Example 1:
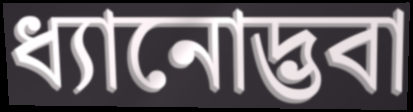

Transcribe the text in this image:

ধ্যানোদ্ভবা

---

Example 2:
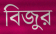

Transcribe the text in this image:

বিজুর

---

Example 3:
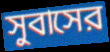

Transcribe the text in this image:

সুবাসের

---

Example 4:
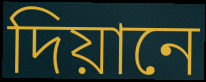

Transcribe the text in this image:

দিয়ানে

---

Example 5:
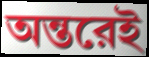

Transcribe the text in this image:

অন্তরেই